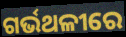
ଗର୍ଭଥଳୀରେ